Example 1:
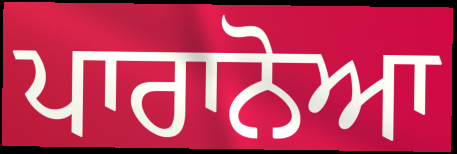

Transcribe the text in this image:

ਪਾਰਾਨੋਆ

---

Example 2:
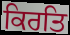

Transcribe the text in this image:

ਕਿਰਤਿ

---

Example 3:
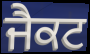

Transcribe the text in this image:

ਜੈਕਟ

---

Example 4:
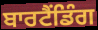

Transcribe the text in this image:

ਬਾਰਟੈਂਡਿੰਗ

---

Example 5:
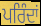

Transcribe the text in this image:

ਪਰਿੰਦਾਂ